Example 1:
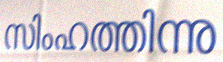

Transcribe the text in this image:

സിംഹത്തിന്നു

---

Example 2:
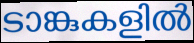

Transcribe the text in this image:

ടാങ്കുകളിൽ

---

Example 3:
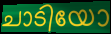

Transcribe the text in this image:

ചാടിയോ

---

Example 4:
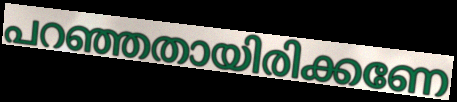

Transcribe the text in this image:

പറഞ്ഞതായിരിക്കണേ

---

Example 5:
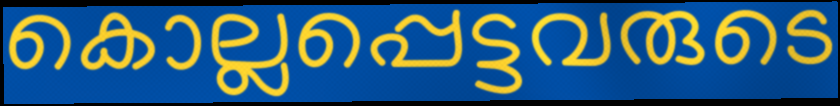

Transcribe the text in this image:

കൊല്ലപ്പെട്ടവരുടെ